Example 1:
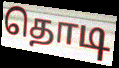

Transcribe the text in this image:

தொடி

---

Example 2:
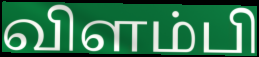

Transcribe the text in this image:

விளம்பி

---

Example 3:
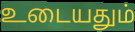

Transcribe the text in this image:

உடையதும்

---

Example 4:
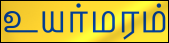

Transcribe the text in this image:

உயர்மரம்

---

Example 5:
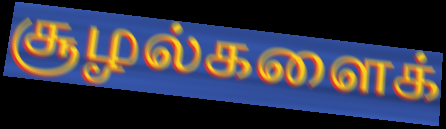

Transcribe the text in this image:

சூழல்களைக்